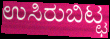
ಉಸಿರುಬಿಟ್ಟ